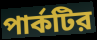
পার্কটির